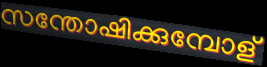
സന്തോഷിക്കുമ്പോള്